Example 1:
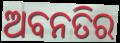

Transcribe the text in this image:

ଅବନତିର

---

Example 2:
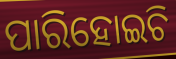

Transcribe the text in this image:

ପାରିହୋଇଚି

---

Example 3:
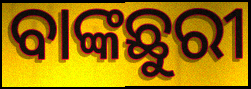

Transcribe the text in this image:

ବାଙ୍କଛୁରୀ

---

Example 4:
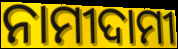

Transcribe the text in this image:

ନାମୀଦାମୀ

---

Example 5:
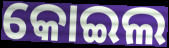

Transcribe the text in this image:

କୋଇଲ